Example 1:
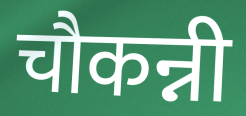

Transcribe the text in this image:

चौकन्नी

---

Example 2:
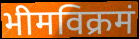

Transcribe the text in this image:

भीमविक्रमं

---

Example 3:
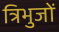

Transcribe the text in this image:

त्रिभुजों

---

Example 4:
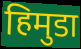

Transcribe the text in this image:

हिमुडा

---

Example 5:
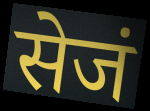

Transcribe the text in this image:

सेजं